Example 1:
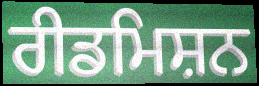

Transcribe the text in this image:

ਰੀਡਮਿਸ਼ਨ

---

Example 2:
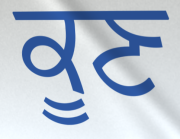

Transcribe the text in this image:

ਕੂਣ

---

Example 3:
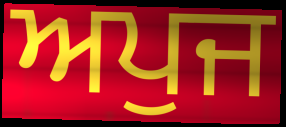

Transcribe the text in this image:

ਅਪੁਜ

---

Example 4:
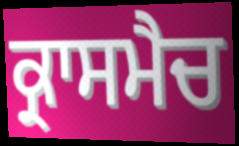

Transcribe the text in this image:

ਕ੍ਰਾਸਮੈਚ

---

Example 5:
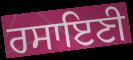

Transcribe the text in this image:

ਰਸਾਇਣੀ